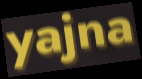
yajna